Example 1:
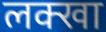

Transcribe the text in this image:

लक्खा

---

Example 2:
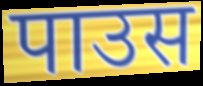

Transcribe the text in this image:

पाउस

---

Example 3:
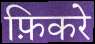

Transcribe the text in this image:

फ़िकरे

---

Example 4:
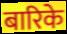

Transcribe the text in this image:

बारिके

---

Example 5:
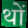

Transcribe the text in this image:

थों